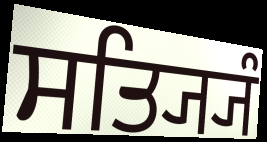
ਸਤ੍ਯ੍ਯਿੰ